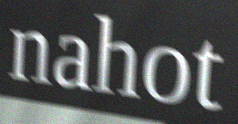
nahot